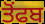
ਤੋਂਫਬ